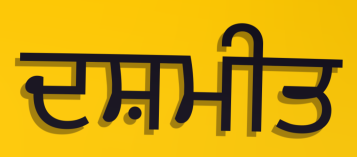
ਦਸ਼ਮੀਤ